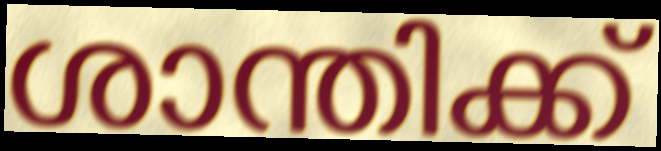
ശാന്തിക്ക്